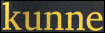
kunne